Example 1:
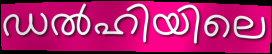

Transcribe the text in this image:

ഡൽഹിയിലെ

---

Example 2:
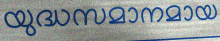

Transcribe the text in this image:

യുദ്ധസമാനമായ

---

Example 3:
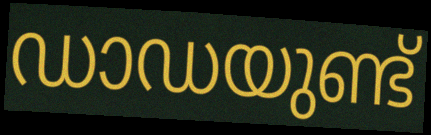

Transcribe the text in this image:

ഡാഡയുണ്ട്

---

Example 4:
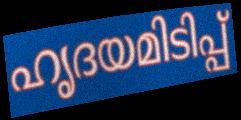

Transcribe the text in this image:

ഹൃദയമിടിപ്പ്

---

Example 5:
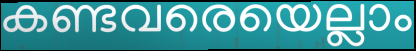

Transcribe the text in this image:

കണ്ടവരെയെല്ലാം